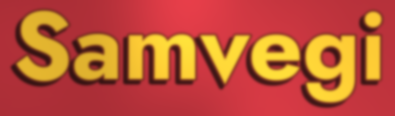
Samvegi